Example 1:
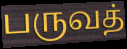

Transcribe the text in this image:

பருவத்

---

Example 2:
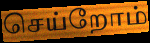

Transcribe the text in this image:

செய்றோம்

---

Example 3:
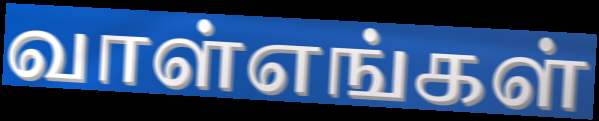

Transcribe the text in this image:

வாள்எங்கள்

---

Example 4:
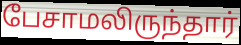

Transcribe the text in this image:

பேசாமலிருந்தார்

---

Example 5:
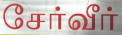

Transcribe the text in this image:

சேர்வீர்